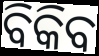
ବିକିବ